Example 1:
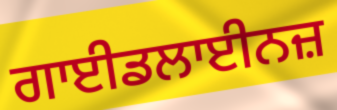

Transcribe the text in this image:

ਗਾਈਡਲਾਈਨਜ਼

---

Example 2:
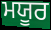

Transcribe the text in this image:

ਮਯੂਰ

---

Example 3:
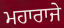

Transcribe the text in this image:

ਮਹਾਰਾਜੇ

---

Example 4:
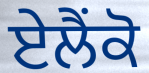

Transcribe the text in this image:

ਏਲੈਂਕੋ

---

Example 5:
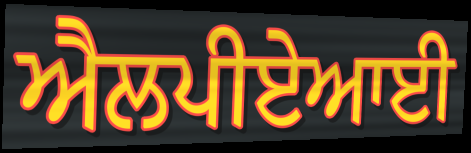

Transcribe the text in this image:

ਐਲਪੀਏਆਈ